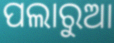
ପଲାରୁଆ